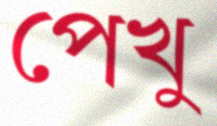
পেখু